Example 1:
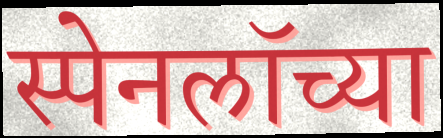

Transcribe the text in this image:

स्पेनलॉच्या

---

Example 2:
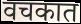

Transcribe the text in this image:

वचकात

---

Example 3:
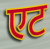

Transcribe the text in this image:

एट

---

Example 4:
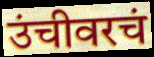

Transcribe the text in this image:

उंचीवरचं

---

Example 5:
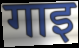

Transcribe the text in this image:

गाइ